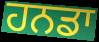
ਹਨਡਾ